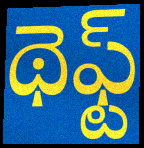
థెఫ్ట్